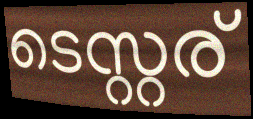
ടെസ്റ്റര്